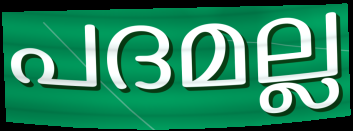
പദമല്ല